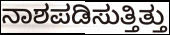
ನಾಶಪಡಿಸುತ್ತಿತ್ತು